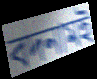
বদনামই